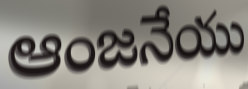
ఆంజనేయు